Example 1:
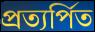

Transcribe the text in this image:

প্রত্যর্পিত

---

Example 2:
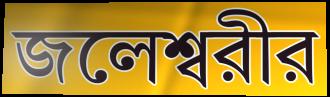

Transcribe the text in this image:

জলেশ্বরীর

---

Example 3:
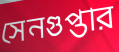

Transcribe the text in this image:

সেনগুপ্তার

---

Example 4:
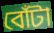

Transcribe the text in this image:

বোঁটা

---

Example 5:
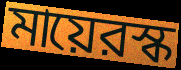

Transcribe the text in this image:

মায়েরস্ক